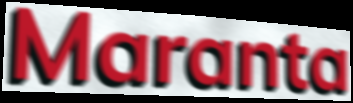
Maranta